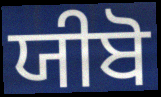
ਯੀਬੋ